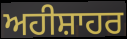
ਅਹੀਸ਼ਾਹਰ